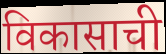
विकासाची